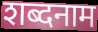
शब्दनाम